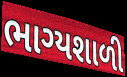
ભાગ્યશાળી